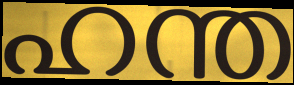
ഹന്ത